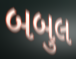
બબુલ